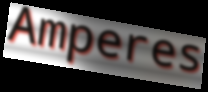
Amperes